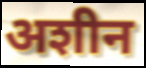
अशीन